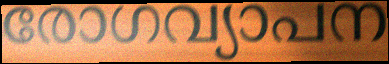
രോഗവ്യാപന